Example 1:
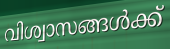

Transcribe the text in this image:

വിശ്വാസങ്ങൾക്ക്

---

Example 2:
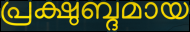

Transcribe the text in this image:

പ്രക്ഷുബ്ദമായ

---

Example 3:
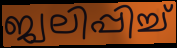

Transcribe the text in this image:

ജ്വലിപ്പിച്ച്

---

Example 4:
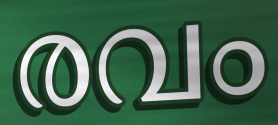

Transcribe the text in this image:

രവം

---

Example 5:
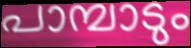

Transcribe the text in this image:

പാമ്പാടും